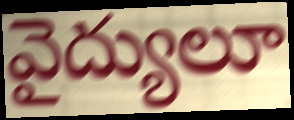
వైద్యులూ